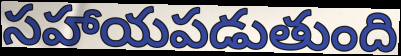
సహాయపడుతుంది